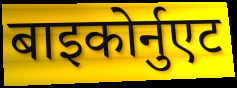
बाइकोर्नुएट